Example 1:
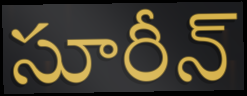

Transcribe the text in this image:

సూరీన్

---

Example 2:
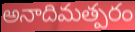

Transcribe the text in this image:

అనాదిమత్పరం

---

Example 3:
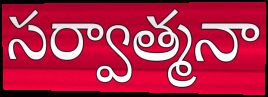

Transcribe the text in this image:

సర్వాత్మనా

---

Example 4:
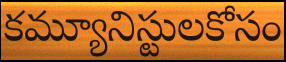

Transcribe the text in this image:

కమ్యూనిస్టులకోసం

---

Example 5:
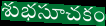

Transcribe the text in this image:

శుభసూచకం